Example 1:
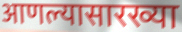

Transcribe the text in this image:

आणल्यासारख्या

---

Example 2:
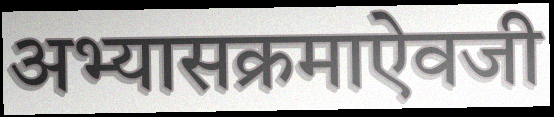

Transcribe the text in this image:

अभ्यासक्रमाऐवजी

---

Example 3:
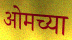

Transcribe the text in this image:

ओमच्या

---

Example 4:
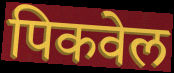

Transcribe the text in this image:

पिकवेल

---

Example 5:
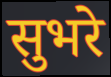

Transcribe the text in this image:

सुभरे